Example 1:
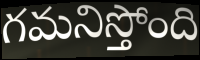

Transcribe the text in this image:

గమనిస్తోంది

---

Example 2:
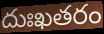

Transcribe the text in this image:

దుఃఖతరం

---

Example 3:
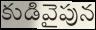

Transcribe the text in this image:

కుడివైపున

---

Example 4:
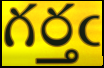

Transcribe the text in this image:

గర్తఁ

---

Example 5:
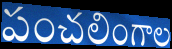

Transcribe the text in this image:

పంచలింగాల